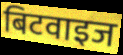
बिटवाइज